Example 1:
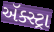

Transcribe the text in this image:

ઍક્સ્ટ્રા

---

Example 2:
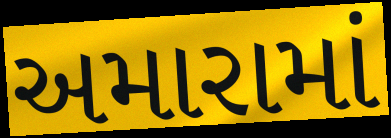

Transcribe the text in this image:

અમારામાં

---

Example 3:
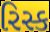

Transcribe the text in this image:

રિસ્ક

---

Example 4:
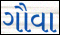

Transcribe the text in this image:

ગૌવા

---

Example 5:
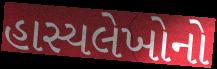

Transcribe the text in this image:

હાસ્યલેખોનો